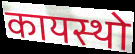
कायस्थो